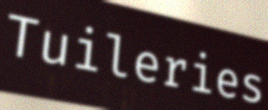
Tuileries